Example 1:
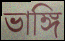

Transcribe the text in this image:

ভাঙ্গি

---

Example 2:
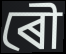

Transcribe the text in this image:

ৰৌ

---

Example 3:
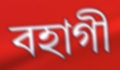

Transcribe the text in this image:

বহাগী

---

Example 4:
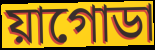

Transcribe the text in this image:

য়াগোডা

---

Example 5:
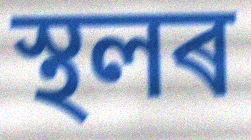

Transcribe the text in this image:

স্থলৰ